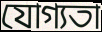
যোগ্যতা